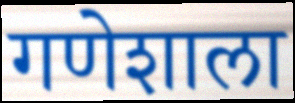
गणेशाला